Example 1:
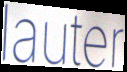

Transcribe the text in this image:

lauter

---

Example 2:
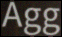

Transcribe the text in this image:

Agg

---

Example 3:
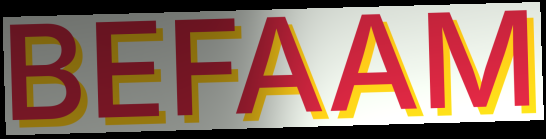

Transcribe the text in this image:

BEFAAM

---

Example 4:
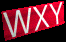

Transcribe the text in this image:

WXY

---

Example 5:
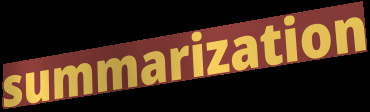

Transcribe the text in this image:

summarization